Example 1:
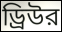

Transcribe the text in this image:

ড্রিউর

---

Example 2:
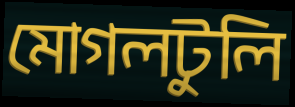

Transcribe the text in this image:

মোগলটুলি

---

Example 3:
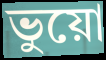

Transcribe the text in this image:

ভুয়ো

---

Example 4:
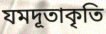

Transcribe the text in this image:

যমদূতাকৃতি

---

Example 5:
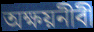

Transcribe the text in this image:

অক্ষয়নীবী